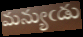
మన్యుఁడు